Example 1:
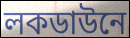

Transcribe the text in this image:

লকডাউনে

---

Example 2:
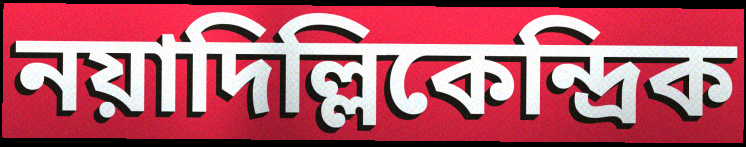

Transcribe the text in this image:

নয়াদিল্লিকেন্দ্রিক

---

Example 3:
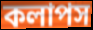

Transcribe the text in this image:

কলাপস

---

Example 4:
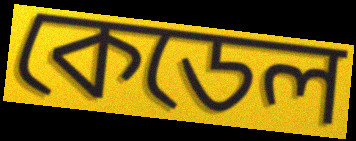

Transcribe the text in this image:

কেডেল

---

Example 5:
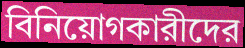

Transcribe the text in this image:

বিনিয়োগকারীদের